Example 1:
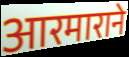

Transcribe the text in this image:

आरमाराने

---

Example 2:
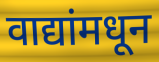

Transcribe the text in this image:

वाद्यांमधून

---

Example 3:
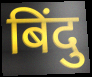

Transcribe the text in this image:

बिंदु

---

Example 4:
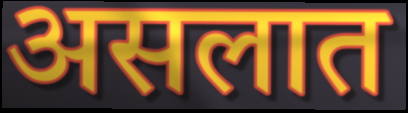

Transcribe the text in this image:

असलात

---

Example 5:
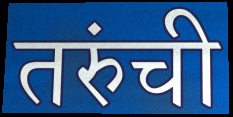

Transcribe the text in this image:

तरुंची